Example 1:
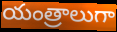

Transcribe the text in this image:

యంత్రాలుగా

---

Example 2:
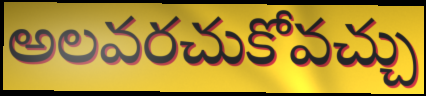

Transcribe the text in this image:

అలవరచుకోవచ్చు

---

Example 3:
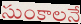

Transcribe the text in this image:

సుంకాలనే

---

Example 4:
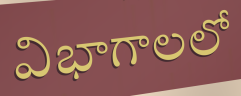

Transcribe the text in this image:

విభాగాలలో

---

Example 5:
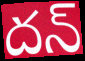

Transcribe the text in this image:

దన్